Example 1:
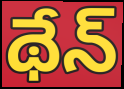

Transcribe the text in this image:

థేన్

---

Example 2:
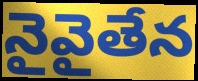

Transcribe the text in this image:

నైవైతేన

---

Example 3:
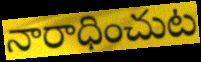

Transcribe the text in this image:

నారాధించుట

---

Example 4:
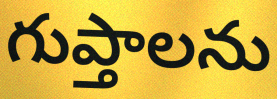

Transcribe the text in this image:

గుప్తాలను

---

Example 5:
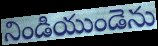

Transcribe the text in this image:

నిండియుండెను